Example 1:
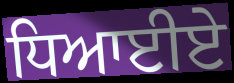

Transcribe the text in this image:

ਧਿਆਈਏ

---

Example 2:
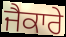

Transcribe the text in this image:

ਜੈਕਾਰੇ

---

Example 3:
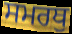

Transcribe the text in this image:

ਸਮਰਥੁ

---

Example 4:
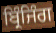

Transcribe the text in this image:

ਬ੍ਰਿੰਜਿੰਗ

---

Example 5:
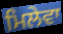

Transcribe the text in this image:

ਮਿਲੇਵਾ